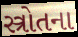
સ્ત્રોતના